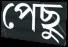
পেছু